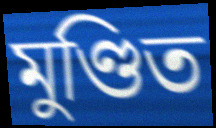
মুণ্ডিত